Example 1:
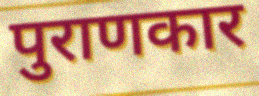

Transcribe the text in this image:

पुराणकार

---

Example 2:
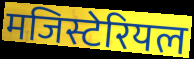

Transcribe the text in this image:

मजिस्टेरियल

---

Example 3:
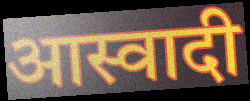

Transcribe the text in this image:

आस्वादी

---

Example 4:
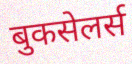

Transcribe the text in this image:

बुकसेलर्स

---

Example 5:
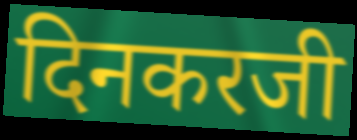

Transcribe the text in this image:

दिनकरजी